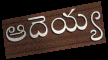
ఆదెయ్య